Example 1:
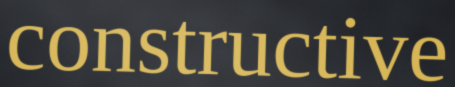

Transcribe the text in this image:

constructive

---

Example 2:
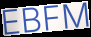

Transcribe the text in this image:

EBFM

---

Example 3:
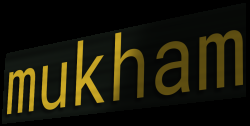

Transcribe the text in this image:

mukham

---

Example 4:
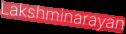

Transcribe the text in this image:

Lakshminarayan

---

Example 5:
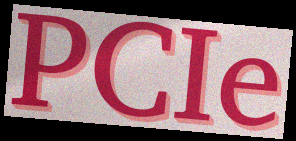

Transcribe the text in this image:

PCIe